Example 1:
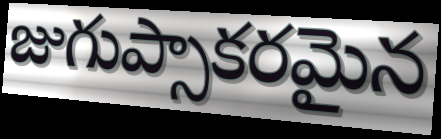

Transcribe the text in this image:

జుగుప్సాకరమైన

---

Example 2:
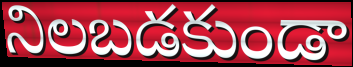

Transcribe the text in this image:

నిలబడకుండా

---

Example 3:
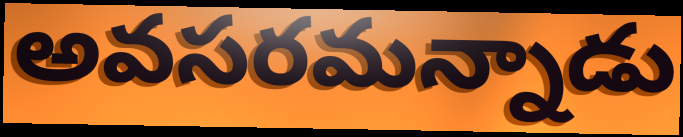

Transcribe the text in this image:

అవసరమన్నాడు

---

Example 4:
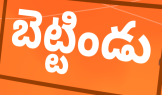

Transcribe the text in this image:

బెట్టిండు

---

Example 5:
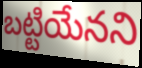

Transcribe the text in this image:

బట్టియేనని